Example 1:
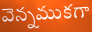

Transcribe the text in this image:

వెన్నముకగా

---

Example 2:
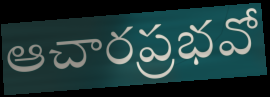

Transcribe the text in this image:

ఆచారప్రభవో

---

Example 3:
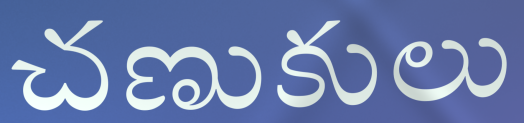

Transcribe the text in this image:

చణుకులు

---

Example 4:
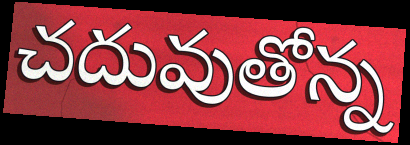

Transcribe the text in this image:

చదువుతోన్న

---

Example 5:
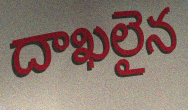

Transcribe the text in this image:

దాఖలైన